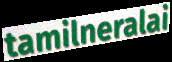
tamilneralai